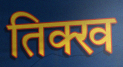
तिक्ख